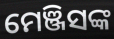
ମେଞ୍ଜିସଙ୍କ